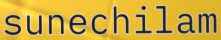
sunechilam